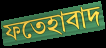
ফতেহাবাদ